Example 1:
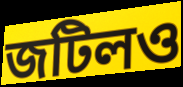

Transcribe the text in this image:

জটিলও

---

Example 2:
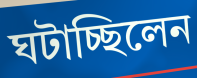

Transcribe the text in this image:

ঘটাচ্ছিলেন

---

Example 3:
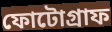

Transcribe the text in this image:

ফোটোগ্রাফ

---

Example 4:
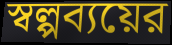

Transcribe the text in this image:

স্বল্পব্যয়ের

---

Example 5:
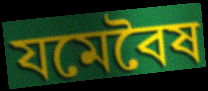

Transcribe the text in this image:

যমেবৈষ